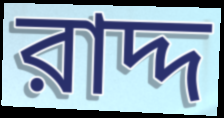
রাদ্দ